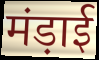
मंड़ाई